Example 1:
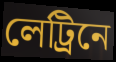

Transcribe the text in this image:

লেট্রিনে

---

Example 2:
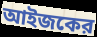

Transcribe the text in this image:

আইজকের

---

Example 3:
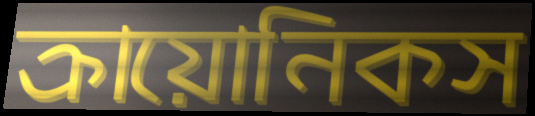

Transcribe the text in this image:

ক্রায়োনিকস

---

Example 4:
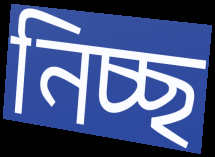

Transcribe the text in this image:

নিচ্ছ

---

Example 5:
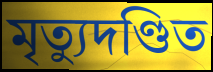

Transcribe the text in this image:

মৃত্যুদণ্ডিত